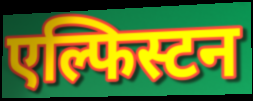
एल्फिस्टन